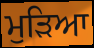
ਮੁੜਿਆ